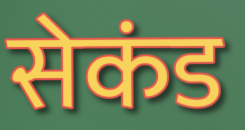
सेकंड